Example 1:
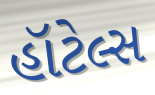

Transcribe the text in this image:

હૉટેલ્સ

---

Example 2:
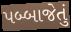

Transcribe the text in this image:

પબ્બાજેતું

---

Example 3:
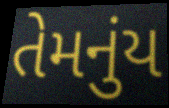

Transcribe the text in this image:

તેમનુંય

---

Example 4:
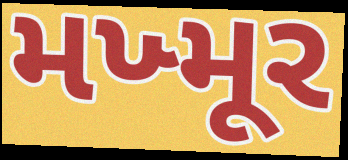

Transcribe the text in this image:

મખ્મૂર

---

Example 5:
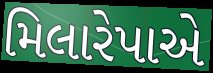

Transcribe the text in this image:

મિલારેપાએ